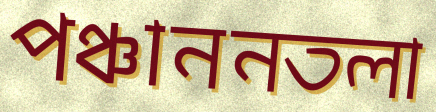
পঞ্চাননতলা